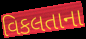
વિકલતાના